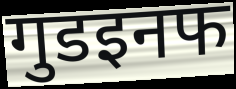
गुडइनफ